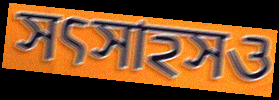
সৎসাহসও